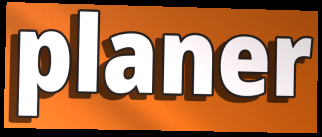
planer